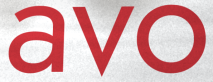
avo